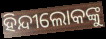
ହିନ୍ଦୀଲୋକଙ୍କୁ